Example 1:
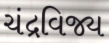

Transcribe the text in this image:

ચંદ્રવિજ્ય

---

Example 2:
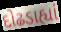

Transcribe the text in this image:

દોઢડાહ્યાં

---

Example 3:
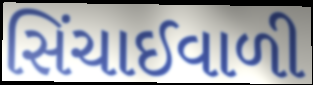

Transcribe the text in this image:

સિંચાઈવાળી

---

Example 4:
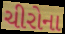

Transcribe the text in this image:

ચીરોના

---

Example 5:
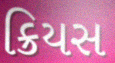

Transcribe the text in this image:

ક્રિયસ